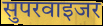
सुपरवाइजर